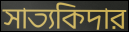
সাত্যকিদার